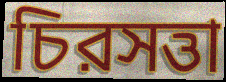
চিরসত্তা